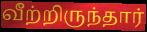
வீற்றிருந்தார்